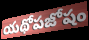
యథోపజోషం